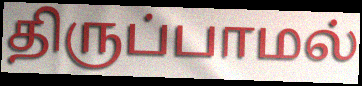
திருப்பாமல்